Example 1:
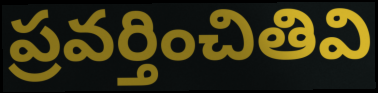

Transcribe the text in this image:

ప్రవర్తించితివి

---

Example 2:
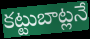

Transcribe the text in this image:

కట్టుబాట్లనే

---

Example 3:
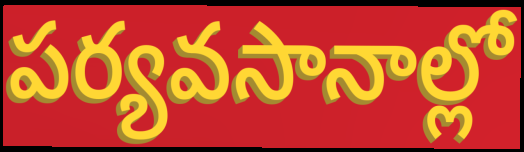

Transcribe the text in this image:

పర్యవసానాల్లో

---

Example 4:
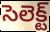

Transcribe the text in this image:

సెలెక్ట్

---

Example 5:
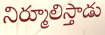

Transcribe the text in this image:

నిర్మూలిస్తాడు